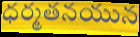
ధర్మతనయున